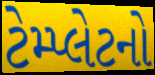
ટેમ્પ્લેટનો